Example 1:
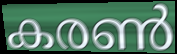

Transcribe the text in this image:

കരൺ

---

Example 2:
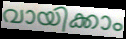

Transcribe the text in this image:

വായിക്കാം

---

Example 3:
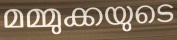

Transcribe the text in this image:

മമ്മുക്കയുടെ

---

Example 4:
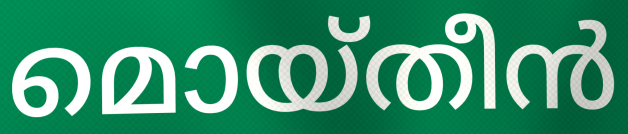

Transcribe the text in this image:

മൊയ്തീൻ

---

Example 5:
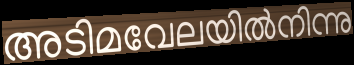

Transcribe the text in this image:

അടിമവേലയിൽനിന്നു